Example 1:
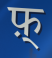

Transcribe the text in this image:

फ़्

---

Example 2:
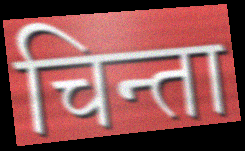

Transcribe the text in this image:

चिन्ता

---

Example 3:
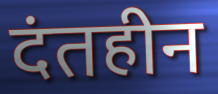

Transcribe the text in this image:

दंतहीन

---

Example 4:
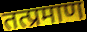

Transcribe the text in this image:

तत्प्रमाण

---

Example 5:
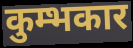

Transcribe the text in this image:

कुम्भकार